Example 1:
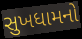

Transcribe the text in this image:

સુખધામનો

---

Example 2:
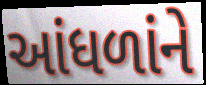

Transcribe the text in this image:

આંધળાંને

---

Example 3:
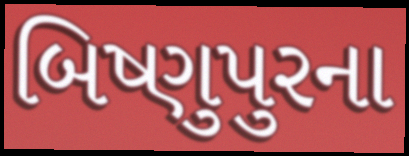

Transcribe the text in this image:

બિષ્ણુપુરના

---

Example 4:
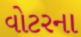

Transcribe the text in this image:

વોટરના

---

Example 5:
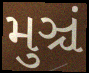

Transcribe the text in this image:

મુઞ્ચં